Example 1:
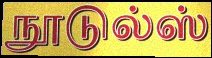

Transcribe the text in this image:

நூடுல்ஸ்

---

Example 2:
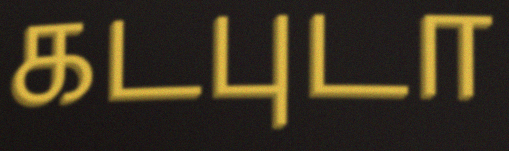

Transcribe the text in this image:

கடபுடா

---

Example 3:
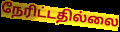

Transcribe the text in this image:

நேரிட்டதில்லை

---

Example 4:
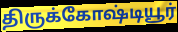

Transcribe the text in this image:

திருக்கோஷ்டியூர்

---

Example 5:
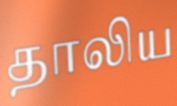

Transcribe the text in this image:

தாலிய